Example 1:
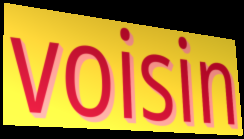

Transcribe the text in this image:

voisin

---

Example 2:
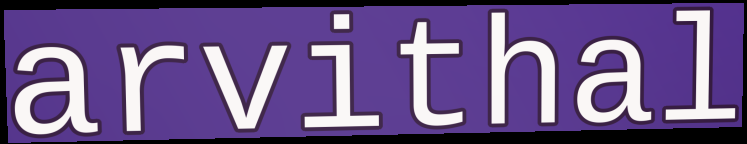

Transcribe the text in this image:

arvithal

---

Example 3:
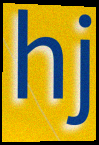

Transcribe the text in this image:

hj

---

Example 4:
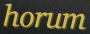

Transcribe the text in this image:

horum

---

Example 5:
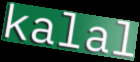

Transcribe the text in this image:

kalal